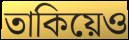
তাকিয়েও